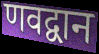
णवद्वान